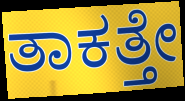
ತಾಕತ್ತೇ